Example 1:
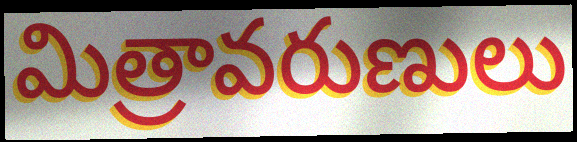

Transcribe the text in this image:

మిత్రావరుణులు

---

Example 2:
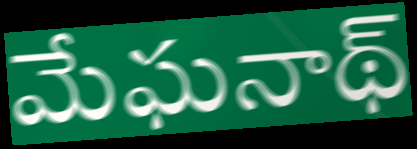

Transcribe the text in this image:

మేఘనాథ్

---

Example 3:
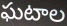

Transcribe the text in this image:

ఘటాల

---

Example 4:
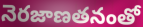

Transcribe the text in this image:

నెరజాణతనంతో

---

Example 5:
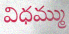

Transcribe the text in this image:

విధమ్ము